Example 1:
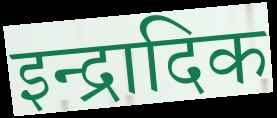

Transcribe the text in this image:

इन्द्रादिक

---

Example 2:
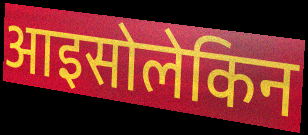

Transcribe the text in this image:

आइसोलेकिन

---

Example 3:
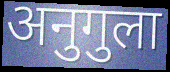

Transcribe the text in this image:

अनुगुला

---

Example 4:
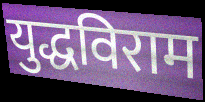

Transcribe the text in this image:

युद्धविराम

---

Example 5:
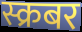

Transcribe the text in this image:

स्‍क्रबर